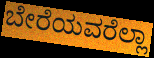
ಬೇರೆಯವರೆಲ್ಲಾ